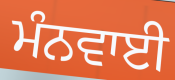
ਮੰਨਵਾਈ